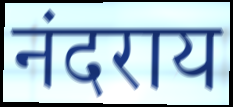
नंदराय